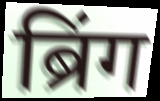
ब्रिंग